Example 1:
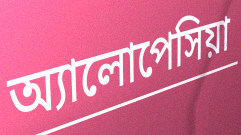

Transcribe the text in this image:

অ্যালোপেসিয়া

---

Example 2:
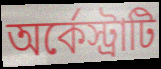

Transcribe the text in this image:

অর্কেস্ট্রাটি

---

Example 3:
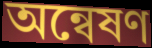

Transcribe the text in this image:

অন্বেষণ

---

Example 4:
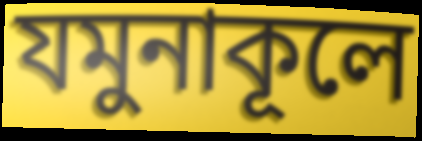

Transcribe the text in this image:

যমুনাকূলে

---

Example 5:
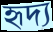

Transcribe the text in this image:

হৃদ্য